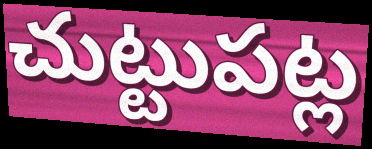
చుట్టుపట్ల